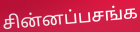
சின்னப்பசங்க